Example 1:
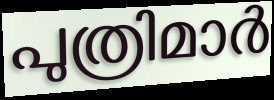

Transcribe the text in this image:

പുത്രിമാർ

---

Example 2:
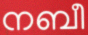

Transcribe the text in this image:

നബീ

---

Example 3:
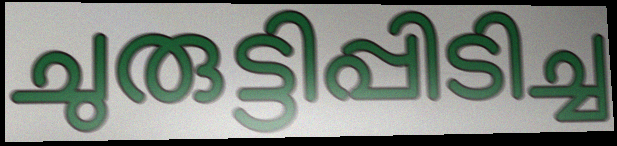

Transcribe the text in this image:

ചുരുട്ടിപ്പിടിച്ച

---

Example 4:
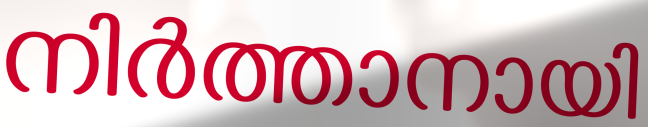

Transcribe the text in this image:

നിർത്താനായി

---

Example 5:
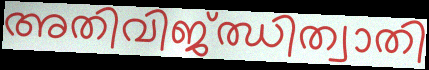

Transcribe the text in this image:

അതിവിജ്ഝിത്വാതി